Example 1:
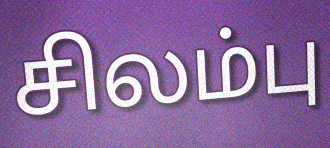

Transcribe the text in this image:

சிலம்பு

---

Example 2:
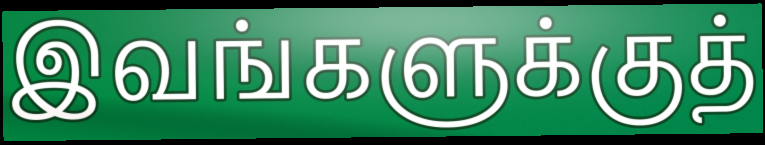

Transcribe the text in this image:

இவங்களுக்குத்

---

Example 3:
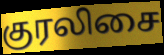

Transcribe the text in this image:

குரலிசை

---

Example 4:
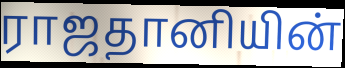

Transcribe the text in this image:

ராஜதானியின்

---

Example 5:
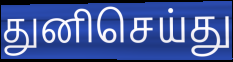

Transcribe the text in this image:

துனிசெய்து